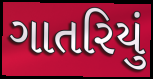
ગાતરિયું